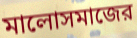
মালোসমাজের